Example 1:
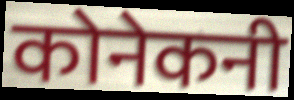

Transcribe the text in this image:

कोनेकनी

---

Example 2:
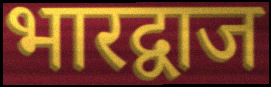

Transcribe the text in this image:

भारद्वाज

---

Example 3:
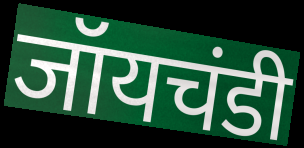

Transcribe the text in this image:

जॉयचंडी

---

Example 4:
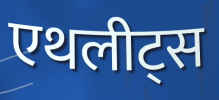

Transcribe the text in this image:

एथलीट्स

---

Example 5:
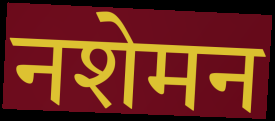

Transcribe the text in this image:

नशेमन